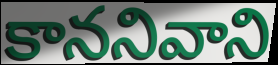
కాననివాని